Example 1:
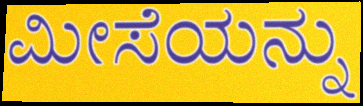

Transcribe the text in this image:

ಮೀಸೆಯನ್ನು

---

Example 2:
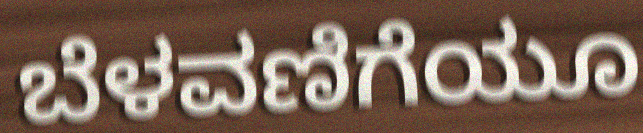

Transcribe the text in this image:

ಬೆಳವಣಿಗೆಯೂ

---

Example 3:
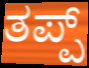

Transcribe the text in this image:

ತಪ್ಪ್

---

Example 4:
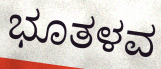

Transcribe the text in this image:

ಭೂತಳವ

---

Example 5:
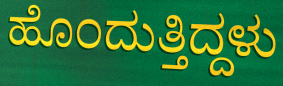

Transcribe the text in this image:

ಹೊಂದುತ್ತಿದ್ದಳು